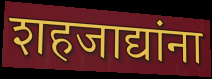
शहजाद्यांना